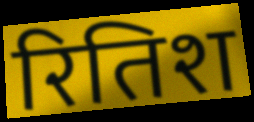
रितिश